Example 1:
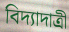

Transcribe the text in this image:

বিদ্যাদাত্রী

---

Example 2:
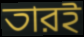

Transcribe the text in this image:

তারই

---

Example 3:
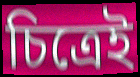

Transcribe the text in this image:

চিত্রেই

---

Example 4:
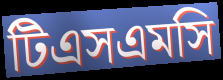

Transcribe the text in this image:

টিএসএমসি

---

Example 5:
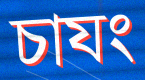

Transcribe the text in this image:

চাযং